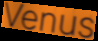
Venus